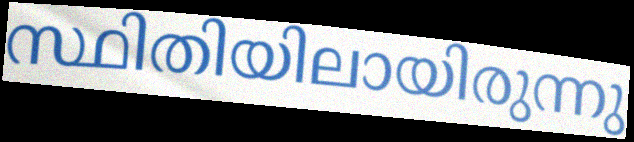
സ്ഥിതിയിലായിരുന്നു